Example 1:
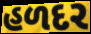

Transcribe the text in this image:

હળદર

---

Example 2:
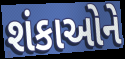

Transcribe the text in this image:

શંકાઓને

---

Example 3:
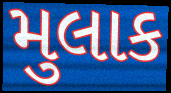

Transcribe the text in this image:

મુલાક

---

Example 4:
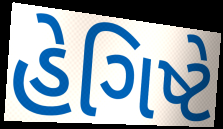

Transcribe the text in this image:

હેગિષ્ટે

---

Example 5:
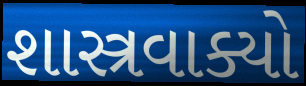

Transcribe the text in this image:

શાસ્ત્રવાક્યો